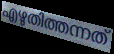
എഴുതിത്തന്നത്